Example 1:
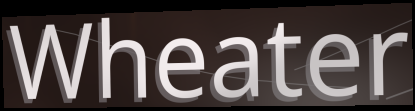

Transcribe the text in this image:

Wheater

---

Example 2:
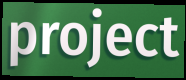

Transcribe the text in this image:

project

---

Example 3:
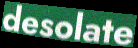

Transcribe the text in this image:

desolate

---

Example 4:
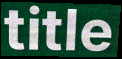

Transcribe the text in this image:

title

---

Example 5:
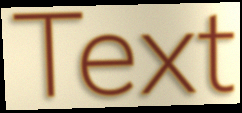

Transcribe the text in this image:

Text